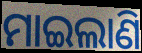
ମାଇଲାଣି